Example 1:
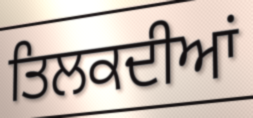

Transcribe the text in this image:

ਤਿਲਕਦੀਆਂ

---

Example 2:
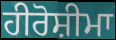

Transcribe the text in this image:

ਹੀਰੋਸ਼ੀਮਾ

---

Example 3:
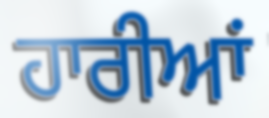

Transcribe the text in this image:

ਹਾਰੀਆਂ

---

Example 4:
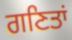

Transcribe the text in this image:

ਗਣਿਤਾਂ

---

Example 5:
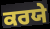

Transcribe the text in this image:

ਕਰਯੇ